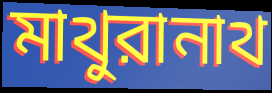
মাথুরানাথ